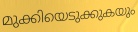
മുക്കിയെടുക്കുകയും